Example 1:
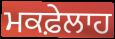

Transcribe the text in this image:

ਮਕਫ਼ੇਲਾਹ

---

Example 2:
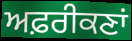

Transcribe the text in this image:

ਅਫ਼ਰੀਕਣਾਂ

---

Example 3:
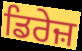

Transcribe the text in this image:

ਡਿਰੇਜ਼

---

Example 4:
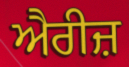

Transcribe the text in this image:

ਐਰੀਜ਼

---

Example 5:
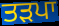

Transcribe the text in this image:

ਤੜਪਾ